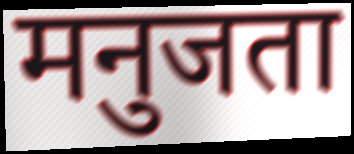
मनुजता